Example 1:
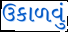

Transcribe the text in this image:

ઉકાળવું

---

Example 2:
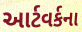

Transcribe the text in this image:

આર્ટવર્કના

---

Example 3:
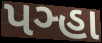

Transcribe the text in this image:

પઞ્હા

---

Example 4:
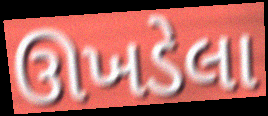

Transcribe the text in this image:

ઊખડેલા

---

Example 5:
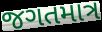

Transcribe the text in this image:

જગતમાત્ર